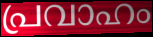
പ്രവാഹം